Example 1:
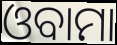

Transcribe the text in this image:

ଓବାମା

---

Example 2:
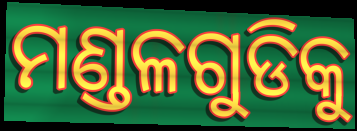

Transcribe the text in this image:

ମଣ୍ଡଳଗୁଡିକୁ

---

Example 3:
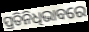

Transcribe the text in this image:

ପ୍ରତିନିଧିଭାବରେ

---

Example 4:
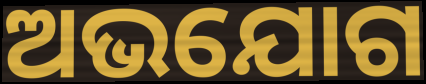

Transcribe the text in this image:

ଅଭଯୋଗ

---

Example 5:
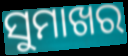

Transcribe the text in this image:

ସୁମାଖର